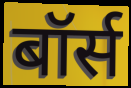
बॉर्स